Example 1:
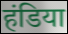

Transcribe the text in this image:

हंडिया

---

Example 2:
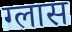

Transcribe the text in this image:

ग्लास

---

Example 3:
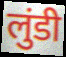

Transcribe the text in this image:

लुंडी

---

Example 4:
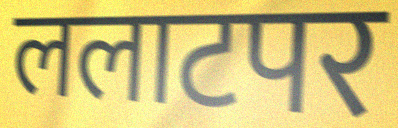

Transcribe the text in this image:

ललाटपर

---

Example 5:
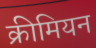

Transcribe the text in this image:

क्रीमियन